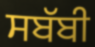
ਸਬੱਬੀ